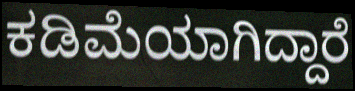
ಕಡಿಮೆಯಾಗಿದ್ದಾರೆ